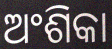
ଅଂଶିକା